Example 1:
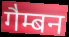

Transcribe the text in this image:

गैम्बन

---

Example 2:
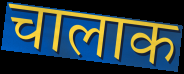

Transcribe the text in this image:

चालाक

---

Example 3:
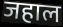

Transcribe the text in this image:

जहाल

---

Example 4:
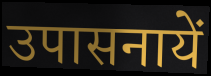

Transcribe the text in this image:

उपासनायें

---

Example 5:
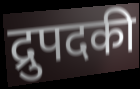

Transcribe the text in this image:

द्रुपदकी